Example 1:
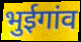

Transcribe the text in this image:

भुईगांव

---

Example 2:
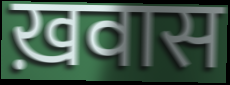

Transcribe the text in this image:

ख़वास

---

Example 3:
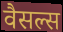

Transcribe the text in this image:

वैसल्स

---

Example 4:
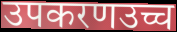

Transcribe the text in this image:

उपकरणउच्च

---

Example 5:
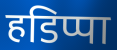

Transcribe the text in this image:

हडिप्पा